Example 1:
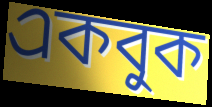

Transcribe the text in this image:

একবুক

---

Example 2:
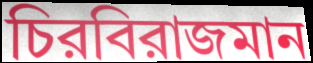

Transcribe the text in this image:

চিরবিরাজমান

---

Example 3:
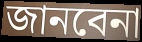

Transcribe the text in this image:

জানবেনা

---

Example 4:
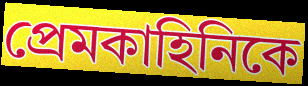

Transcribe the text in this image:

প্রেমকাহিনিকে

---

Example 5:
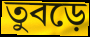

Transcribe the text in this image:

তুবড়ে